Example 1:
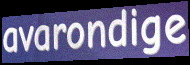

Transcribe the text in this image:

avarondige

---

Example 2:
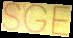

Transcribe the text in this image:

SGE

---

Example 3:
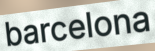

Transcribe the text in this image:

barcelona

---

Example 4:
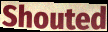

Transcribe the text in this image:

Shouted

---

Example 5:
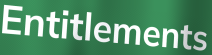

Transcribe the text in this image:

Entitlements